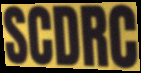
SCDRC